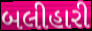
બલીહારી